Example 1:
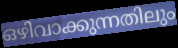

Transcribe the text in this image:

ഒഴിവാക്കുന്നതിലും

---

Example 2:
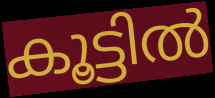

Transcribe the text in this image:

കൂട്ടിൽ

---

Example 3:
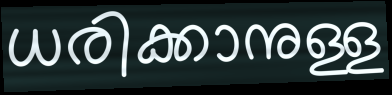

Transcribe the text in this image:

ധരിക്കാനുള്ള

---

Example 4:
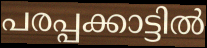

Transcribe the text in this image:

പരപ്പക്കാട്ടിൽ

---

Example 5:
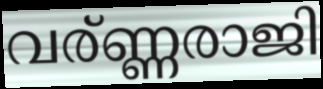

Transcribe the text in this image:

വര്ണ്ണരാജി